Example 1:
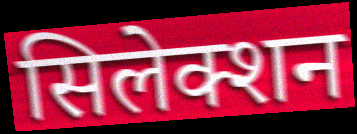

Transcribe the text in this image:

सिलेक्शन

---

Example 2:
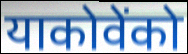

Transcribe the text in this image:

याकोवेंको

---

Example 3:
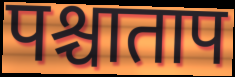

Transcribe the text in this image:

पश्चाताप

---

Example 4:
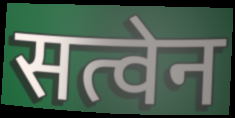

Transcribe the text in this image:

सत्वेन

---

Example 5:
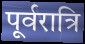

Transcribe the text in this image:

पूर्वरात्रि